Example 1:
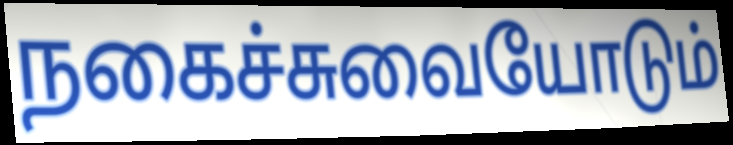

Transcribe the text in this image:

நகைச்சுவையோடும்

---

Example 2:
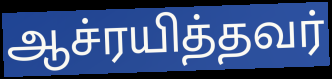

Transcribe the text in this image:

ஆச்ரயித்தவர்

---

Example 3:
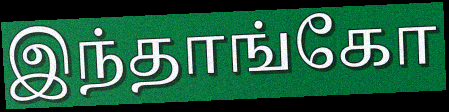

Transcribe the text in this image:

இந்தாங்கோ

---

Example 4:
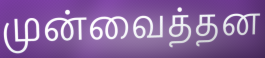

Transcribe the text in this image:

முன்வைத்தன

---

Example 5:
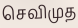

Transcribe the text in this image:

செவிமுத